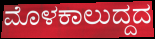
ಮೊಳಕಾಲುದ್ದದ